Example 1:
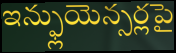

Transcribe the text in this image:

ఇన్ఫ్లుయెన్సర్లపై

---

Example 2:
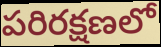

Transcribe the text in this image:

పరిరక్షణలో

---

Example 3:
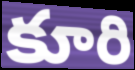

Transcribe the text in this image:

కూరి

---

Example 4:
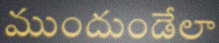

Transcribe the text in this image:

ముందుండేలా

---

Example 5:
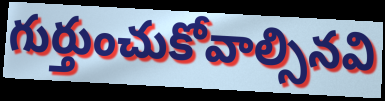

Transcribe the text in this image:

గుర్తుంచుకోవాల్సినవి